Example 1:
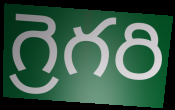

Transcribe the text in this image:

గ్రెగరి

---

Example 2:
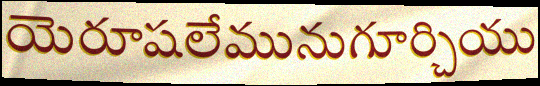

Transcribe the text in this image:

యెరూషలేమునుగూర్చియు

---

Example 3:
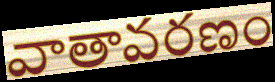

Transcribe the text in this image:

వాతావరణం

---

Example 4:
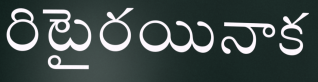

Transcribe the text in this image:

రిటైరయినాక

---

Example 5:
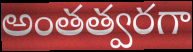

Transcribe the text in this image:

అంతత్వరగా